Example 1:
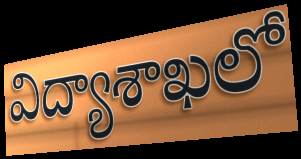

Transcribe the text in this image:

విద్యాశాఖలో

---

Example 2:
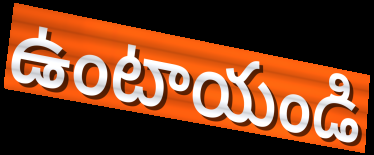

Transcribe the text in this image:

ఉంటాయండి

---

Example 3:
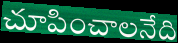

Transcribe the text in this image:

చూపించాలనేది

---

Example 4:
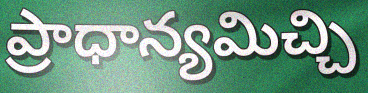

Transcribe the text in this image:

ప్రాధాన్యమిచ్చి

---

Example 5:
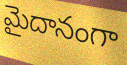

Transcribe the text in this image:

మైదానంగా